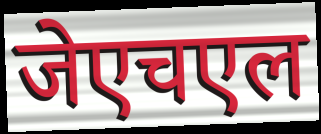
जेएचएल